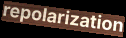
repolarization